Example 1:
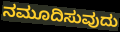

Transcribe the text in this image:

ನಮೂದಿಸುವುದು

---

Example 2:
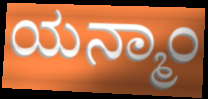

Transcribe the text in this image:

ಯನ್ಮಾಂ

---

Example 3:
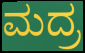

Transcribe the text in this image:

ಮದ್ರ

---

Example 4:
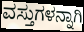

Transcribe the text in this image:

ವಸ್ತುಗಳನ್ನಾಗಿ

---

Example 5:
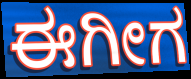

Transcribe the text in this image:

ಈಗೀಗ